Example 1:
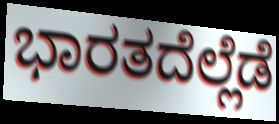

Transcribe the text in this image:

ಭಾರತದೆಲ್ಲೆಡೆ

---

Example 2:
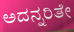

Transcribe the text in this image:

ಅದನ್ನರಿತೇ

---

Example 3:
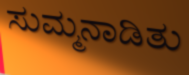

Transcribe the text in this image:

ಸುಮ್ಮನಾಡಿತು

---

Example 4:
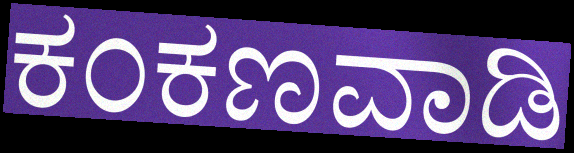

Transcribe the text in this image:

ಕಂಕಣವಾಡಿ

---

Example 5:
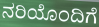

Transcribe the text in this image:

ನರಿಯೊಂದಿಗೆ